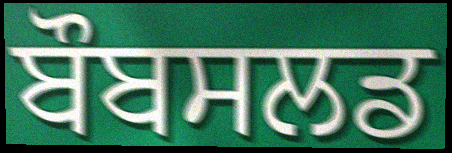
ਬੌਬਸਲਡ